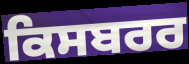
ਕਿਸਬਰਰ